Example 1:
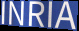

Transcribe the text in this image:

INRIA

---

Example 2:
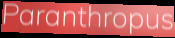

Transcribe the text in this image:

Paranthropus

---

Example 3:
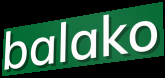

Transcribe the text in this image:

balako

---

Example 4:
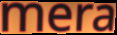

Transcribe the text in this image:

mera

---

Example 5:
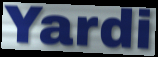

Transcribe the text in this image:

Yardi